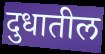
दुधातील